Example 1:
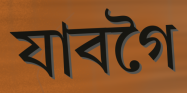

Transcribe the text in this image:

যাবগৈ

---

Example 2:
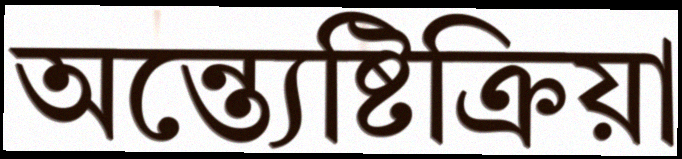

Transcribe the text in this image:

অন্ত্যেষ্টিক্ৰিয়া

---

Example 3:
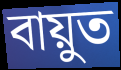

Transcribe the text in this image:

বায়ুত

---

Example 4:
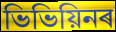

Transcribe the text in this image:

ভিভিয়িনৰ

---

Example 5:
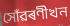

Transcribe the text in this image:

সোঁৱৰণীখন